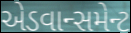
એડવાન્સમેન્ટ